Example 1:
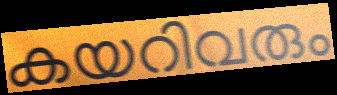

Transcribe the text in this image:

കയറിവരും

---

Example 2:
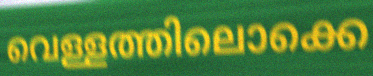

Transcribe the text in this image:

വെള്ളത്തിലൊക്കെ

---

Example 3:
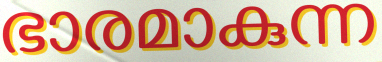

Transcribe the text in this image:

ഭാരമാകുന്ന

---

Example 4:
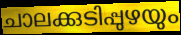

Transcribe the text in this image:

ചാലക്കുടിപ്പുഴയും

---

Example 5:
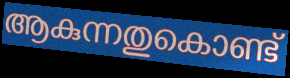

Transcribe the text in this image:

ആകുന്നതുകൊണ്ട്